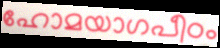
ഹോമയാഗപീഠം